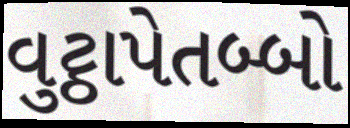
વુટ્ઠાપેતબ્બો